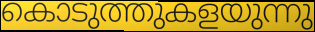
കൊടുത്തുകളയുന്നു